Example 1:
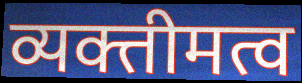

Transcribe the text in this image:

व्यक्तीमत्व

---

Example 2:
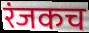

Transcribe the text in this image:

रंजकच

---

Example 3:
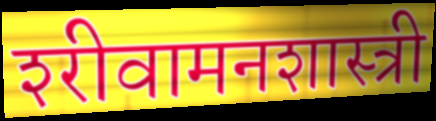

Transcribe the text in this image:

श्रीवामनशास्त्री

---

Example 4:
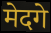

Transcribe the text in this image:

मेदगे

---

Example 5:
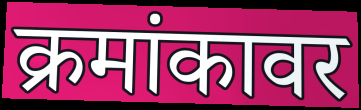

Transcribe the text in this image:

क्रमांकावर